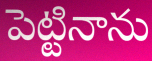
పెట్టినాను